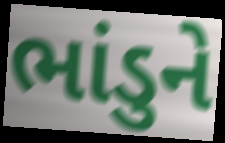
ભાંડુને